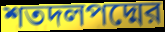
শতদলপদ্মের